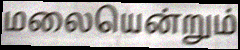
மலையென்றும்